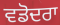
ਵਡੋਦਰਾ